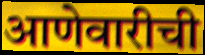
आणेवारीची